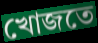
খোজতে